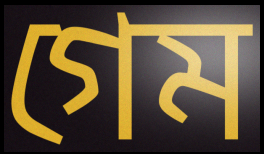
গেম